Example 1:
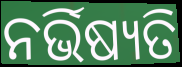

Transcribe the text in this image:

ନର୍ଭିଷ୍ୟତି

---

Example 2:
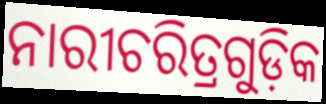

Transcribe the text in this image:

ନାରୀଚରିତ୍ରଗୁଡ଼ିକ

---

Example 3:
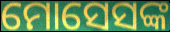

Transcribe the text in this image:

ମୋସେସଙ୍କ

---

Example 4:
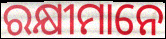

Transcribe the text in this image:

ରକ୍ଷୀମାନେ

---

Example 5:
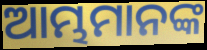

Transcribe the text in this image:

ଆମ୍ଭମାନଙ୍କ